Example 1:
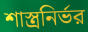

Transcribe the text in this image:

শাস্ত্রনির্ভর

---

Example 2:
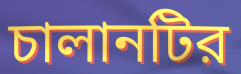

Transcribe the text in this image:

চালানটির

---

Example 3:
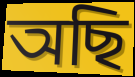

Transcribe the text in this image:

অছি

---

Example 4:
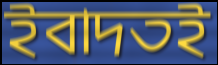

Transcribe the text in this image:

ইবাদতই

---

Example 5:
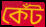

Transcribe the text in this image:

কেঁট